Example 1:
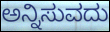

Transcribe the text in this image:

ಅನ್ನಿಸುವದು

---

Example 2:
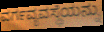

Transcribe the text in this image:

ವರ್ಗವ್ಯವಸ್ಥೆಯನ್ನು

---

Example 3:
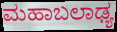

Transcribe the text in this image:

ಮಹಾಬಲಾಢ್ಯ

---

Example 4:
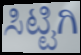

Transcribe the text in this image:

ಸಿಟ್ಟಿಗಿ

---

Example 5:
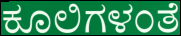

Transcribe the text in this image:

ಕೂಲಿಗಳಂತೆ